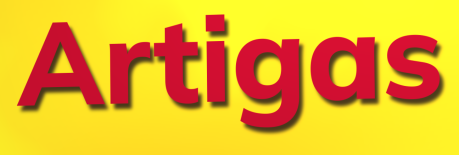
Artigas